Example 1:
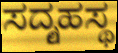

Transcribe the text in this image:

ಸದ್ಗೃಹಸ್ಥ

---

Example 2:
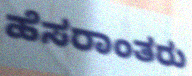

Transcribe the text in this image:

ಹೆಸರಾಂತರು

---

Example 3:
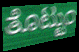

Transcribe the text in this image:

ತೊಟ್ಟುಂ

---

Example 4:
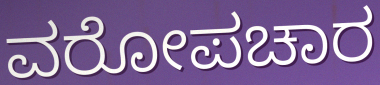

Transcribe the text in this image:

ವರೋಪಚಾರ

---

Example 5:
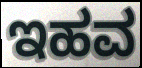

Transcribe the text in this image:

ಇಹವ